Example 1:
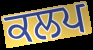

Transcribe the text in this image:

ਕਲਪ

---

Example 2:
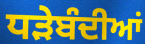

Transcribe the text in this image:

ਧੜੇਬੰਦੀਆਂ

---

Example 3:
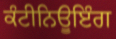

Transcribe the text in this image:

ਕੰਟੀਨਿਊਇੰਗ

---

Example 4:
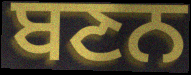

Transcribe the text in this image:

ਬਣਨ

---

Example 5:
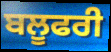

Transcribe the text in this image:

ਬਲੂਫਰੀ